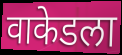
वाकेडला